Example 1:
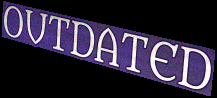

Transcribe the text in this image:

OUTDATED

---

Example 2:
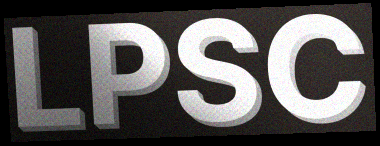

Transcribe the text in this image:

LPSC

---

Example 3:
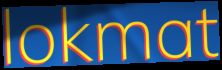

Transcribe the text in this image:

lokmat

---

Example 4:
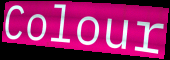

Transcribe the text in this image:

Colour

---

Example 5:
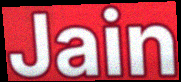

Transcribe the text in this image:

Jain